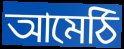
আমেঠি